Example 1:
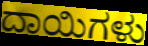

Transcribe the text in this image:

ದಾಯಿಗಳು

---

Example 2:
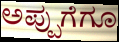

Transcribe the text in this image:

ಅಪ್ಪುಗೆಗೂ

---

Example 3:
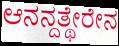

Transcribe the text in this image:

ಆನನ್ದತ್ಥೇರೇನ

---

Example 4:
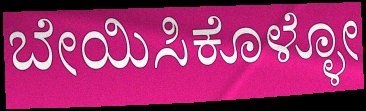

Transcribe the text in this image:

ಬೇಯಿಸಿಕೊಳ್ಳೋ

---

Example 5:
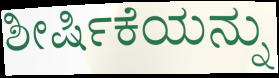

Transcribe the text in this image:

ಶೀರ್ಷಿಕೆಯನ್ನು